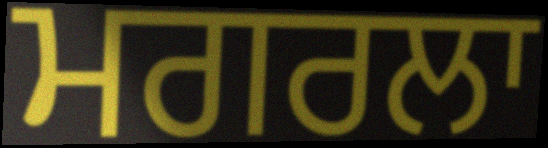
ਮਗਰਲਾ